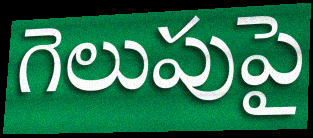
గెలుపుపై